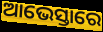
ଆଭେସ୍ତାରେ